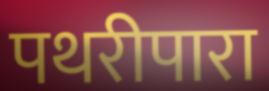
पथरीपारा